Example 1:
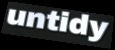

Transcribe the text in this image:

untidy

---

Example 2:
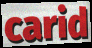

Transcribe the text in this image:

carid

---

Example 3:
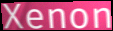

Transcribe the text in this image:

Xenon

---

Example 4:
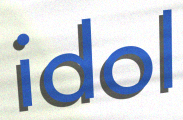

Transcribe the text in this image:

idol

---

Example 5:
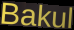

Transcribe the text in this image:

Bakul